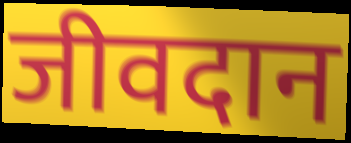
जीवदान